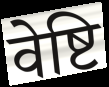
वेष्टि